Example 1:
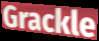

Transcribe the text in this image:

Grackle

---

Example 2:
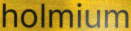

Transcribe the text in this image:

holmium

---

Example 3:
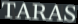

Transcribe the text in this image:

TARAS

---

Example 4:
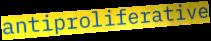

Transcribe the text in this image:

antiproliferative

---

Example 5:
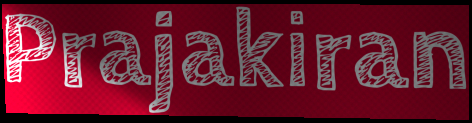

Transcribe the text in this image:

Prajakiran